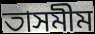
তাসমীম